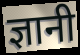
ज्ञानी